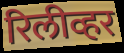
रिलीव्हर